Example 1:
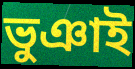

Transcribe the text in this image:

ভুঞাই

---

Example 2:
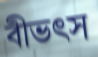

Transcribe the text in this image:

বীভৎস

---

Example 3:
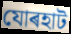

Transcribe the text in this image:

যোৰহাট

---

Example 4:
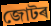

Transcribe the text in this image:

জোটৰ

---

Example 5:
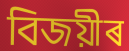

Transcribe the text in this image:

বিজয়ীৰ